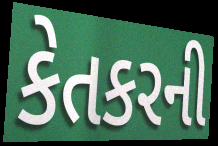
કેતકરની